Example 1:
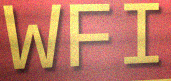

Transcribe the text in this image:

WFI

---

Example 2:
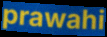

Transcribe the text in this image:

prawahi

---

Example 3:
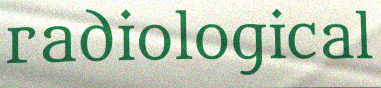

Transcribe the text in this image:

radiological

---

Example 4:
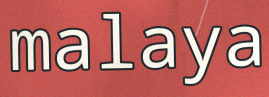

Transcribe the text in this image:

malaya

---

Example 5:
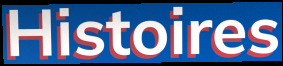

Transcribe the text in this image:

Histoires